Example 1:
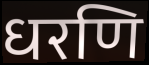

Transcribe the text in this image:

धरणि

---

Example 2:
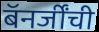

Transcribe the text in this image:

बॅनर्जींची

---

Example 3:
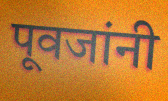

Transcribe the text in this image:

पूवजांनी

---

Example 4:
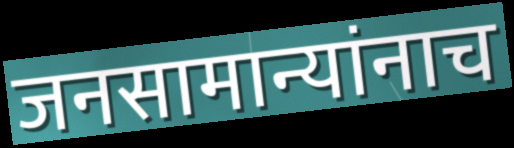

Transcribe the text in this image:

जनसामान्यांनाच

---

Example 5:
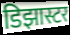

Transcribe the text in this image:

डिझास्टर